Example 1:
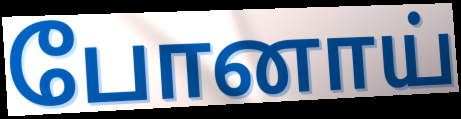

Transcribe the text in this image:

போனாய்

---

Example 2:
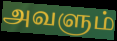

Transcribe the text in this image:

அவளும்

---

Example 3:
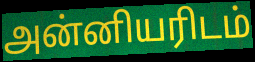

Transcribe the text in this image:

அன்னியரிடம்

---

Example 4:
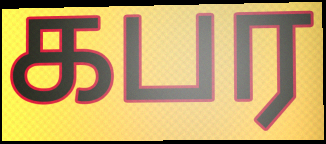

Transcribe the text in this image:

கபர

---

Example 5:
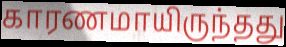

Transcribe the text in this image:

காரணமாயிருந்தது